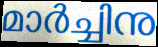
മാർച്ചിനു